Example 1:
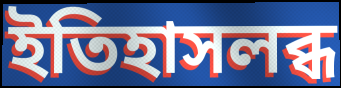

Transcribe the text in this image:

ইতিহাসলব্ধ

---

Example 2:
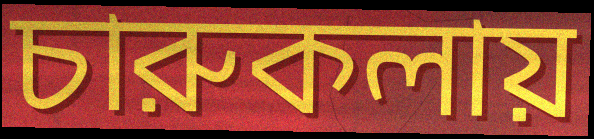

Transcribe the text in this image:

চারুকলায়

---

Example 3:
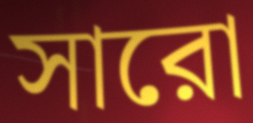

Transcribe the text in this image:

সারো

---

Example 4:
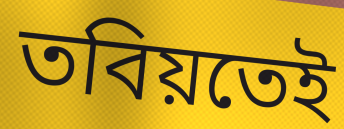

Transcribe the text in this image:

তবিয়তেই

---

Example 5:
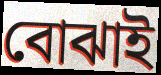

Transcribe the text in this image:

বোঝাই